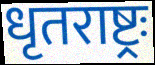
धृतराष्ट्रः